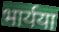
भार्यया